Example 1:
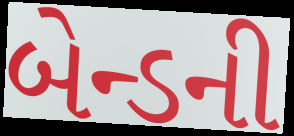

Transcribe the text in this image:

બેન્ડની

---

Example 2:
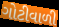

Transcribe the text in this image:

ગોટીવાળી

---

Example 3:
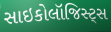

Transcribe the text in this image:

સાઇકોલૉજિસ્ટ્સ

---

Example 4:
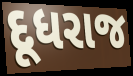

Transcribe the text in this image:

દૂધરાજ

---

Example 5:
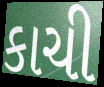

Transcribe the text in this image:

કાચી